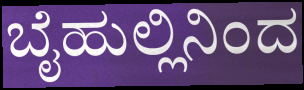
ಬೈಹುಲ್ಲಿನಿಂದ